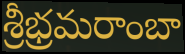
శ్రీభ్రమరాంబా